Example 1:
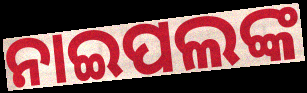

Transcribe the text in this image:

ନାଇପଲଙ୍କ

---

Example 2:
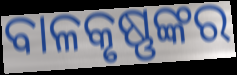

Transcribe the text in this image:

ବାଳକୃଷ୍ଣଙ୍କର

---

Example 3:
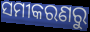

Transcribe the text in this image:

ସମୀକରଣରୁ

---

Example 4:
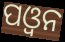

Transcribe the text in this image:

ପଓ୍ବନ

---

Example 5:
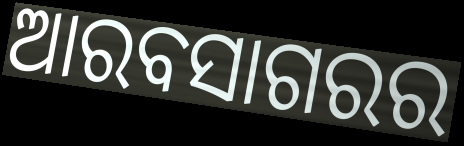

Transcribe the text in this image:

ଆରବସାଗରର